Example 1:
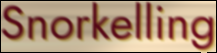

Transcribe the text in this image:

Snorkelling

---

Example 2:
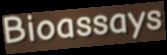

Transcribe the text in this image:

Bioassays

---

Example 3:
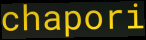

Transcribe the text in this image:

chapori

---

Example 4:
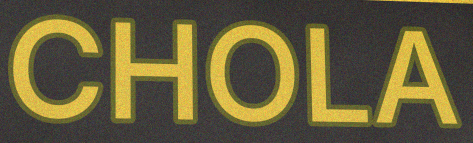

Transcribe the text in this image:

CHOLA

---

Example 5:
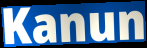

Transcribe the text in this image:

Kanun